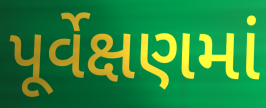
પૂર્વેક્ષણમાં